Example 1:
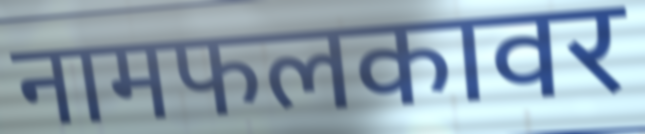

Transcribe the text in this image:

नामफलकावर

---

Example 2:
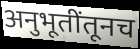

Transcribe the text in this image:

अनुभूतींतूनच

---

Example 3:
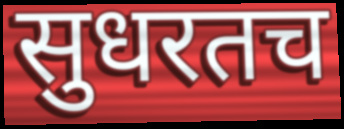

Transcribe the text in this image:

सुधरतच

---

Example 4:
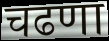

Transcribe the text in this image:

चढणा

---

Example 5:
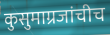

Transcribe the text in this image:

कुसुमाग्रजांचीच